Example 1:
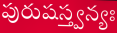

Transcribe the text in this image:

పురుషస్త్వన్యః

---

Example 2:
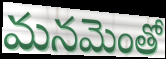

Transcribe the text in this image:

మనమెంతో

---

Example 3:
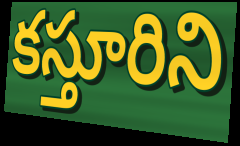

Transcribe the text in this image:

కస్తూరిని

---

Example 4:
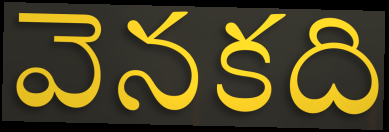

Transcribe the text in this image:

వెనకది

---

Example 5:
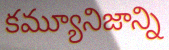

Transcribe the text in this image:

కమ్యూనిజాన్ని